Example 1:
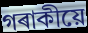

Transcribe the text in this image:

গৰাকীয়ে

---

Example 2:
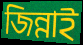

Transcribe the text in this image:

জিন্নাই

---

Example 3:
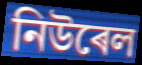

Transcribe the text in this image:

নিউৰেল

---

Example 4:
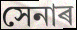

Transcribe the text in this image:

সেনাৰ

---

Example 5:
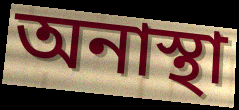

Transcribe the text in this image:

অনাস্থা